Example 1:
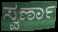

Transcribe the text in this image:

ಸ್ವರ್ಣಾ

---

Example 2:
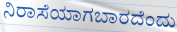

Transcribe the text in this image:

ನಿರಾಸೆಯಾಗಬಾರದೆಂದು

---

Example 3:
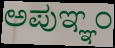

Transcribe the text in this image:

ಅಪುಞ್ಞಂ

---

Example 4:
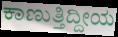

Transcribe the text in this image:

ಕಾಣುತ್ತಿದ್ದೀಯ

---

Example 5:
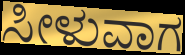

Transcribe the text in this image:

ಸೀಳುವಾಗ